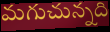
మగుచున్నది